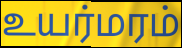
உயர்மரம்